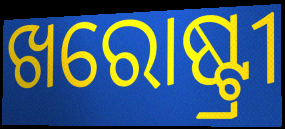
ଖରୋଷ୍ଟ୍ରୀ